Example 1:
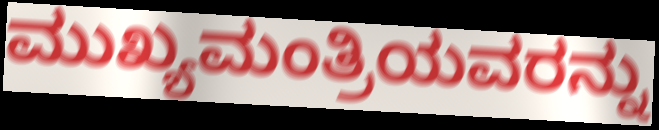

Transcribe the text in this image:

ಮುಖ್ಯಮಂತ್ರಿಯವರನ್ನು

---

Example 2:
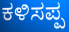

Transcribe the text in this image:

ಕಳಿಸಪ್ಪ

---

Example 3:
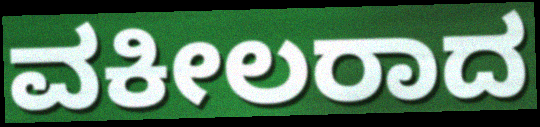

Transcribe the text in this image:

ವಕೀಲರಾದ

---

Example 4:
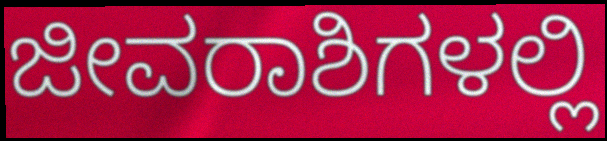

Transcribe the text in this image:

ಜೀವರಾಶಿಗಳಲ್ಲಿ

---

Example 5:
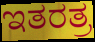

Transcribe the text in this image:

ಇತರತ್ರ